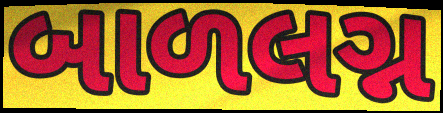
બાળલગ્ન